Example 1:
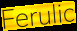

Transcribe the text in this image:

Ferulic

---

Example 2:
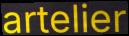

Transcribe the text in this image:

artelier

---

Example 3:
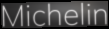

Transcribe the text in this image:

Michelin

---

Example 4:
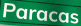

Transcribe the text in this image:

Paracas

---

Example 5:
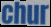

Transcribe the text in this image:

chur